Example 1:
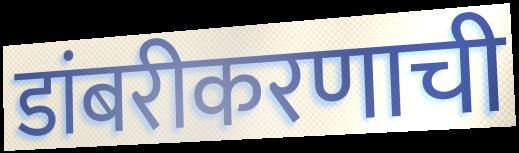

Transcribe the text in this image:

डांबरीकरणाची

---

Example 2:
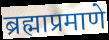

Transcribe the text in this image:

ब्रह्माप्रमाणे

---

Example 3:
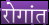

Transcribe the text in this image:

रोगांत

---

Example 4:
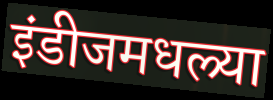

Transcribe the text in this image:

इंडीजमधल्या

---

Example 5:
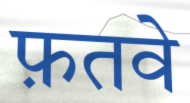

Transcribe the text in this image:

फ़तवे